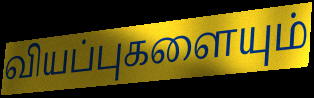
வியப்புகளையும்